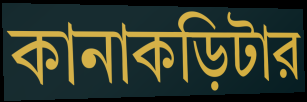
কানাকড়িটার